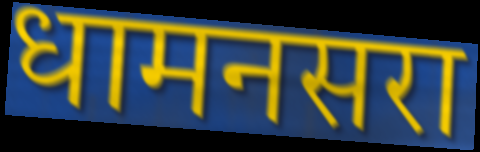
धामनसरा